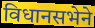
विधानसभेने